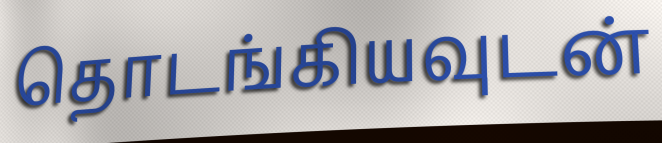
தொடங்கியவுடன்